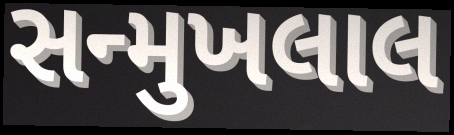
સન્મુખલાલ